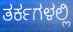
ತರ್ಕಗಳಲ್ಲಿ